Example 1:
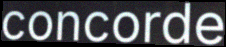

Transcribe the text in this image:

concorde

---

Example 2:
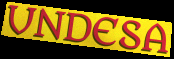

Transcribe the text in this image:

UNDESA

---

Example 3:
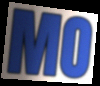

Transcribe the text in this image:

MO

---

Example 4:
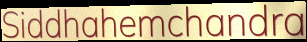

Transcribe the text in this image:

Siddhahemchandra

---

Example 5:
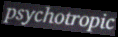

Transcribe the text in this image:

psychotropic